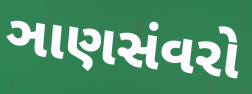
ઞાણસંવરો